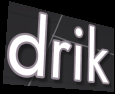
drik